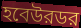
হবেউরডর